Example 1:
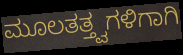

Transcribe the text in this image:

ಮೂಲತತ್ತ್ವಗಳಿಗಾಗಿ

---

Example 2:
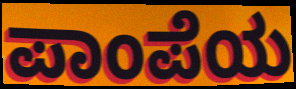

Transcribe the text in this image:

ಪಾಂಪೆಯ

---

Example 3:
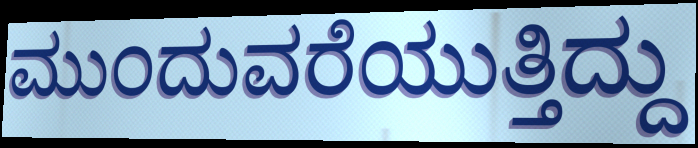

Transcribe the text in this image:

ಮುಂದುವರೆಯುತ್ತಿದ್ದು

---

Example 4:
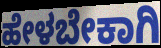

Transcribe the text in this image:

ಹೇಳಬೇಕಾಗಿ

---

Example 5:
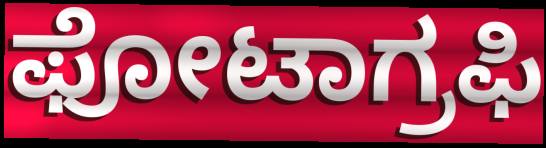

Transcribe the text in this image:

ಫೋಟಾಗ್ರಫಿ